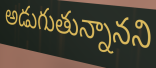
అడుగుతున్నానని